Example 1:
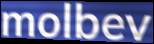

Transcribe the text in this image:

molbev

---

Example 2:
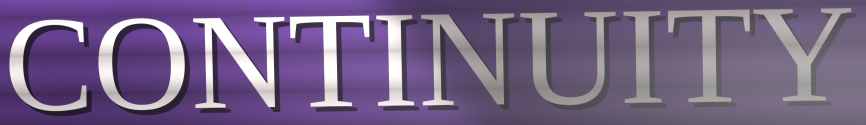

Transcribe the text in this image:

CONTINUITY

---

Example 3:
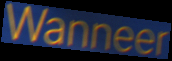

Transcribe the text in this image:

Wanneer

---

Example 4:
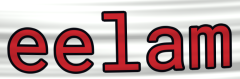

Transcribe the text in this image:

eelam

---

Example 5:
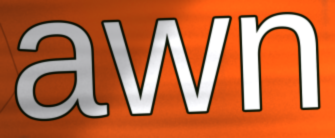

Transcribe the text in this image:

awn